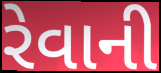
રેવાની